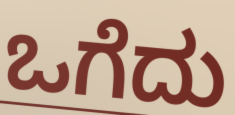
ಒಗೆದು